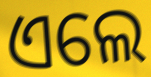
ଏଲେ